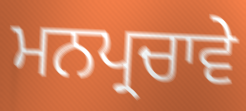
ਮਨਪ੍ਰਚਾਵੇ